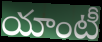
యాంటీ